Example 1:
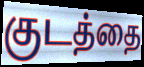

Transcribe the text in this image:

குடத்தை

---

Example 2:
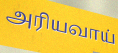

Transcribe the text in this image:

அரியவாய்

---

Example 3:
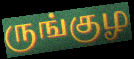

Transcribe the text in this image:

ருங்குழ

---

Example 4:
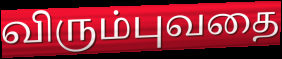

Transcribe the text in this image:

விரும்புவதை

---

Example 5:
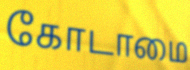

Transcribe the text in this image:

கோடாமை